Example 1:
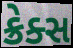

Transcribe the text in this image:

ક્રેક્સ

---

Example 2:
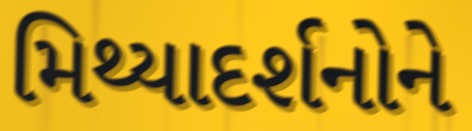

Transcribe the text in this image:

મિથ્યાદર્શનોને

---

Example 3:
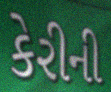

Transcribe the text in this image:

કેરીની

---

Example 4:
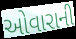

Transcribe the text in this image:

ઓવારાની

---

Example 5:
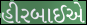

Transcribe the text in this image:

હીરબાઈએ